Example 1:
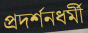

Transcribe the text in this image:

প্রদর্শনধর্মী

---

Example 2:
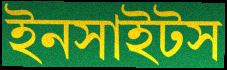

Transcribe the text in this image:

ইনসাইটস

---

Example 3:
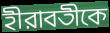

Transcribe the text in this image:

হীরাবতীকে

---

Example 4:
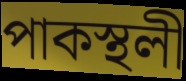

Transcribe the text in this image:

পাকস্থলী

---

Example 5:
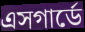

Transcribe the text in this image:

এসগার্ডে